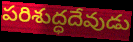
పరిశుద్ధదేవుడు